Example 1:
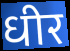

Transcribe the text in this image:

धीर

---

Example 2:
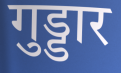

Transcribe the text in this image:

गुड्डार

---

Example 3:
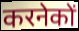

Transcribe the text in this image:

करनेकों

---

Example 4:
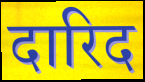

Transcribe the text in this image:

दारिद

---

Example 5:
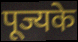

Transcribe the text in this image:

पूज्यके